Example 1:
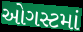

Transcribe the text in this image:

ઓગસ્ટમાં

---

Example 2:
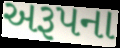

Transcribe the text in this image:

અરૂપના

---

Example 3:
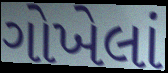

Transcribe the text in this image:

ગોખેલાં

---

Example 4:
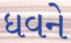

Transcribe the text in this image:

ધવને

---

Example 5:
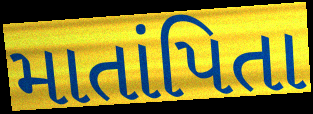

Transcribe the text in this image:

માતાંપિતા